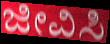
ಜೀವಿಸಿ